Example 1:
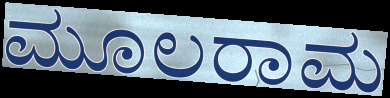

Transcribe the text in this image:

ಮೂಲರಾಮ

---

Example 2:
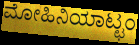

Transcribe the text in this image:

ಮೋಹಿನಿಯಾಟ್ಟಂ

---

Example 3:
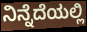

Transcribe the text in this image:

ನಿನ್ನೆದೆಯಲ್ಲಿ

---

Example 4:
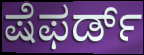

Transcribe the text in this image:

ಷೆಫರ್ಡ್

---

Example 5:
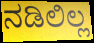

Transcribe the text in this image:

ನಡಿಲಿಲ್ಲ